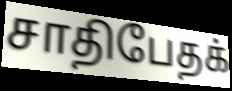
சாதிபேதக்